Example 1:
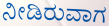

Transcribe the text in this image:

ನೀಡಿರುವಾಗ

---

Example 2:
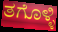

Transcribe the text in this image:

ತಗೊಳ್ಳಿ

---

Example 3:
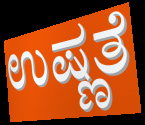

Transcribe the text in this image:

ಉಷ್ಣತೆ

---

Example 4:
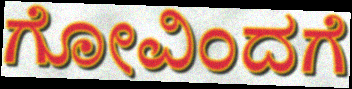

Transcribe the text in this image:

ಗೋವಿಂದಗೆ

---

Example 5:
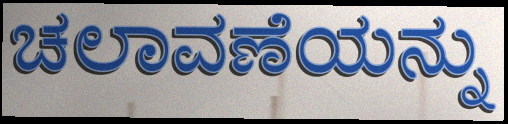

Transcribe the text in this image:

ಚಲಾವಣೆಯನ್ನು